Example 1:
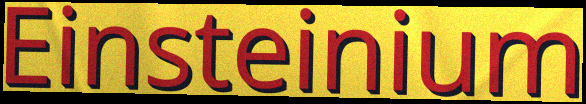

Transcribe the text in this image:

Einsteinium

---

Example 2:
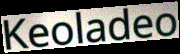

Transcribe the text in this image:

Keoladeo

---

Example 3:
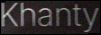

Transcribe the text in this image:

Khanty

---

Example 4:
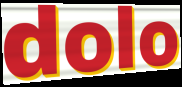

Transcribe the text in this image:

dolo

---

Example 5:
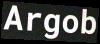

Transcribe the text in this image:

Argob